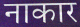
नाकार